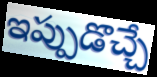
ఇప్పుడొచ్చే